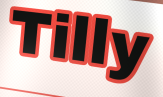
Tilly